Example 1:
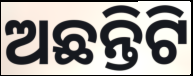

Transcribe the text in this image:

ଅଛନ୍ତିଟି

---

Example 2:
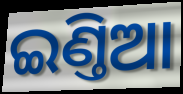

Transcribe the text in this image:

ଇଣ୍ତିଆ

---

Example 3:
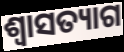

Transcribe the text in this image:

ଶ୍ବାସତ୍ୟାଗ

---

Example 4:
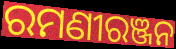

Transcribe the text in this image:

ରମଣୀରଞ୍ଜନ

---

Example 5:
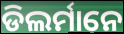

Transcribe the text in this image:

ଡିଲର୍ମାନେ